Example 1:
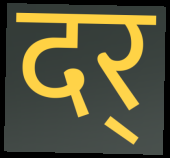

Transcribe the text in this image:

दर्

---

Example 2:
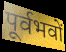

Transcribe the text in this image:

पूर्वभवों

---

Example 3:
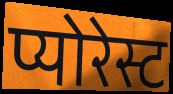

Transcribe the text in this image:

प्योरेस्ट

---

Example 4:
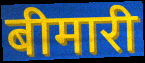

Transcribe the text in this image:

बीमारी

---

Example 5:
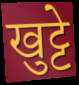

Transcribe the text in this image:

खुट्टे